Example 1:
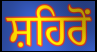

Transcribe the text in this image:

ਸ਼ਹਿਰੋਂ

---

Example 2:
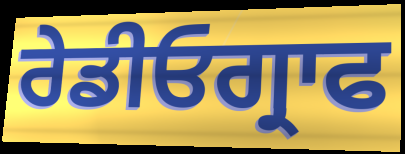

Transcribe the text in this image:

ਰੇਡੀਓਗ੍ਰਾਫ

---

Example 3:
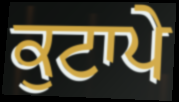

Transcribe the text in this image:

ਕੁਟਾਪੇ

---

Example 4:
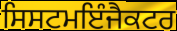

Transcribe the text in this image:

ਸਿਸਟਮਇੰਜੈਕਟਰ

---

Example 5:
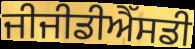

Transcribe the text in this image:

ਜੀਜੀਡੀਐੱਸਡੀ